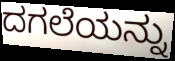
ದಗಲೆಯನ್ನು